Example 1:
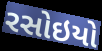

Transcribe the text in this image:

રસોઇયો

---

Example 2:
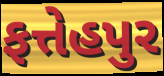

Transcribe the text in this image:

ફત્તેહપુર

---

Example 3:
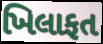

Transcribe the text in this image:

ખિલાફત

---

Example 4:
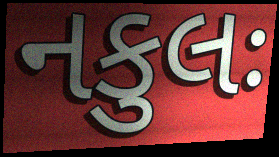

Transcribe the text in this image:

નકુલઃ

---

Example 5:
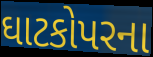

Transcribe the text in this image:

ઘાટકોપરના